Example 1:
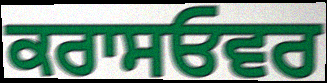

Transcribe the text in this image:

ਕਰਾਸਓਵਰ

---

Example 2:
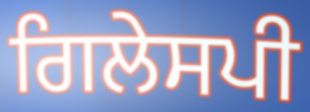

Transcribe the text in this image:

ਗਿਲੇਸਪੀ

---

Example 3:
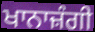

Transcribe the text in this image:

ਖਾਨਾਜ਼ੰਗੀ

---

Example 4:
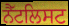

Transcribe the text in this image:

ਨੈੱਟਲਿਸਟ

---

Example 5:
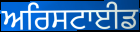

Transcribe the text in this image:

ਅਰਿਸਟਾਈਡ